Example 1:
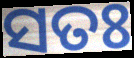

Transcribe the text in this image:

ସତଃ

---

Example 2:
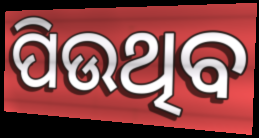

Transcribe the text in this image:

ପିଉଥିବ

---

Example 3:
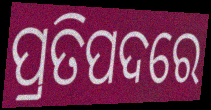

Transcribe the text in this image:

ପ୍ରତିପଦରେ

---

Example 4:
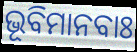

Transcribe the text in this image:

ଭୂବିମାନବାଃ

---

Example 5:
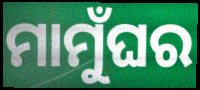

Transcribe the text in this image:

ମାମୁଁଘର